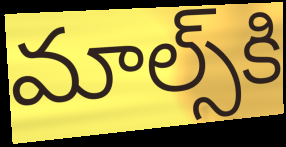
మాల్స్‌కి